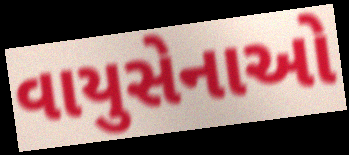
વાયુસેનાઓ